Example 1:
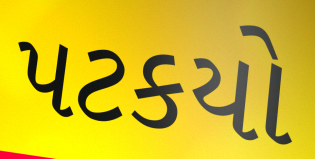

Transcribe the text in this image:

પટકયો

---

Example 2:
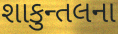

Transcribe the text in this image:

શાકુન્તલના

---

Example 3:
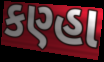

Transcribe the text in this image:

કણ્હા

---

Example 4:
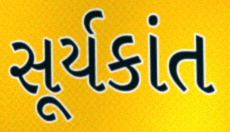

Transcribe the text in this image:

સૂર્યકાંત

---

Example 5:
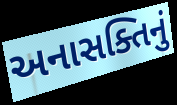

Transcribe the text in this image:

અનાસક્તિનું